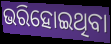
ଭରିହୋଇଥିବା